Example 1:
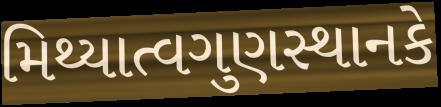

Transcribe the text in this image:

મિથ્યાત્વગુણસ્થાનકે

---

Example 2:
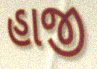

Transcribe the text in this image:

હાજી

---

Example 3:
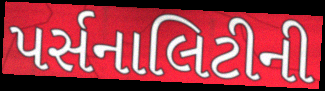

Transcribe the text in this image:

પર્સનાલિટીની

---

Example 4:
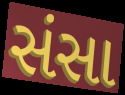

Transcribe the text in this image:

સંસા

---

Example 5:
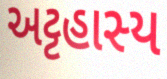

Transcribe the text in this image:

અટ્ટહાસ્ય